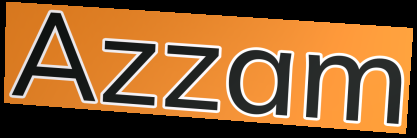
Azzam